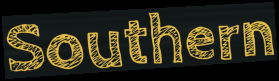
Southern